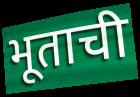
भूताची